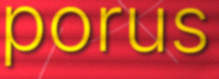
porus